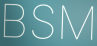
BSM